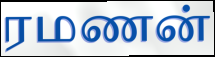
ரமணன்